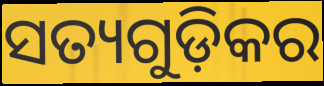
ସତ୍ୟଗୁଡ଼ିକର